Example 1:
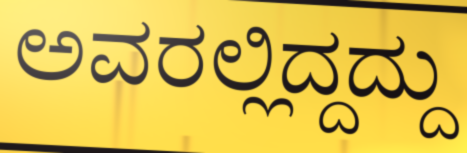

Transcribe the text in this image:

ಅವರಲ್ಲಿದ್ದದ್ದು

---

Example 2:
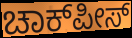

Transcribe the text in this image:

ಚಾಕ್‌ಪೀಸ್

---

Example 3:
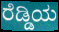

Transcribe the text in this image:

ರೆಡ್ಡಿಯ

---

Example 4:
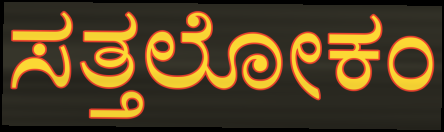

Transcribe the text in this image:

ಸತ್ತಲೋಕಂ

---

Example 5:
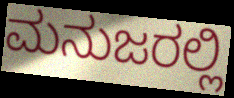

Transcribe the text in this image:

ಮನುಜರಲ್ಲಿ